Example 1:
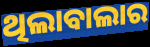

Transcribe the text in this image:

ଥିଲାବାଲାର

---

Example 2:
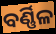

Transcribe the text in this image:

ବର୍ଣ୍ଣିଳ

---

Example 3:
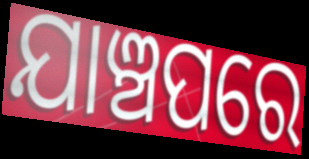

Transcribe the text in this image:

ଯାଞ୍ଚପରେ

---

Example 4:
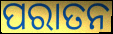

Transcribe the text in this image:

ପରାତନ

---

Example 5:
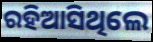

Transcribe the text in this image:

ରହିଆସିଥିଲେ